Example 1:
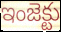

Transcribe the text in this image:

ఇంజెక్టు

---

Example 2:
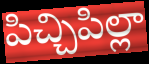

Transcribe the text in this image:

పిచ్చిపిల్లా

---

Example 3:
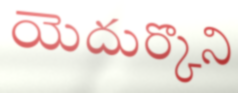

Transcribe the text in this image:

యెదుర్కొని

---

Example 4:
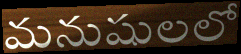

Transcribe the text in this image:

మనుషులలో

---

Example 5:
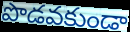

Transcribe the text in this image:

పొడవకుండా